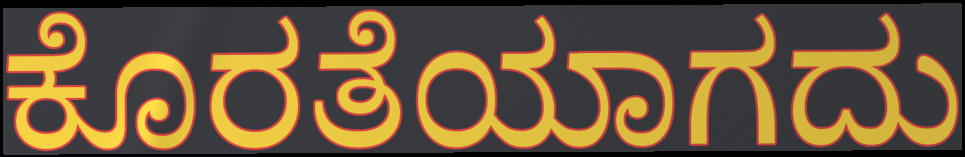
ಕೊರತೆಯಾಗದು